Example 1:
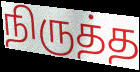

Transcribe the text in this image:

நிருத்த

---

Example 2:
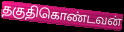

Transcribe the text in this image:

தகுதிகொண்டவன்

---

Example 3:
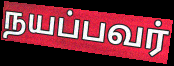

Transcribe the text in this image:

நயப்பவர்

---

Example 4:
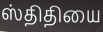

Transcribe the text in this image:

ஸ்திதியை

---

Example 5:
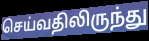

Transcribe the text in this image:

செய்வதிலிருந்து